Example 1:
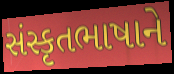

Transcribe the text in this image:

સંસ્કૃતભાષાને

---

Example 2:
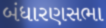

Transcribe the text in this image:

બંધારણસભા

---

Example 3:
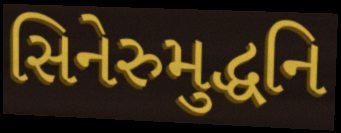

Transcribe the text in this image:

સિનેરુમુદ્ધનિ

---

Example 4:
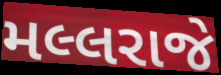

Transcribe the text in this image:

મલ્લરાજે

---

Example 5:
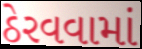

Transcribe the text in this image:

ઠેરવવામાં